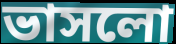
ভাসলো